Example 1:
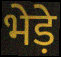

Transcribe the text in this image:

भेड़े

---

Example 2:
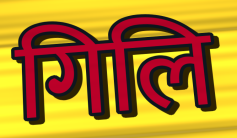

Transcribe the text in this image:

गिलि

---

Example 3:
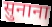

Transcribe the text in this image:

सुनाना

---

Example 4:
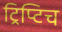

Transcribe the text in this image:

ट्रिप्टिच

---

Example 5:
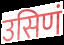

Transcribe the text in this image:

उसिणं